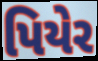
પિયેર